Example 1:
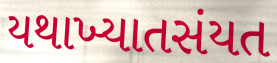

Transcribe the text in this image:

યથાખ્યાતસંયત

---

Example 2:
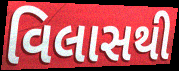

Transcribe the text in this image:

વિલાસથી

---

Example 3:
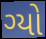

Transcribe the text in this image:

ગ્યો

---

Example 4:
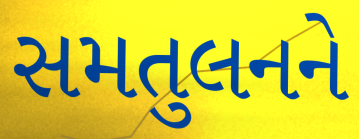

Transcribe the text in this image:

સમતુલનને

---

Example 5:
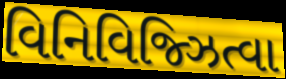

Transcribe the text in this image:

વિનિવિજ્ઝિત્વા